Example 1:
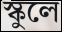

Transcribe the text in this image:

স্কুলে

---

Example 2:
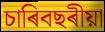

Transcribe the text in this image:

চাৰিবছৰীয়া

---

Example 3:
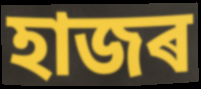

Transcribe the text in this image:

হাজৰ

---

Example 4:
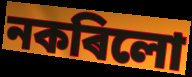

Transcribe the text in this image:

নকৰিলো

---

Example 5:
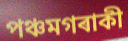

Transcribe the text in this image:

পঞ্চমগৰাকী